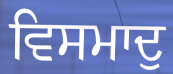
ਵਿਸਮਾਦੁ